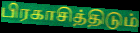
பிரகாசித்திடும்